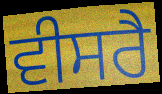
ਵੀਸਰੈ